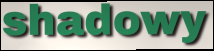
shadowy